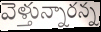
వెళ్తున్నారన్న